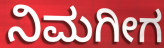
ನಿಮಗೀಗ